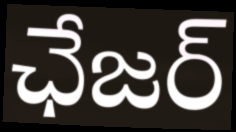
ఛేజర్